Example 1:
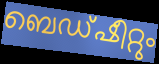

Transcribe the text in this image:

ബെഡ്ഷീറ്റും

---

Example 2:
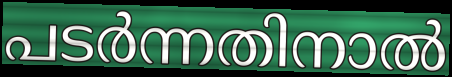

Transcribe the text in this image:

പടർന്നതിനാൽ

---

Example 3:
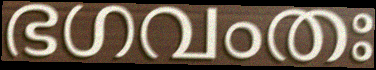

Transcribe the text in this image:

ഭഗവംതഃ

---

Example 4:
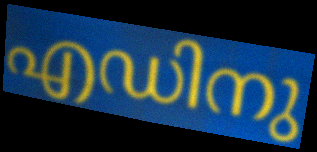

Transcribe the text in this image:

എഡിനു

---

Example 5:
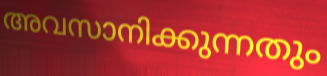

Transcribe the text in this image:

അവസാനിക്കുന്നതും